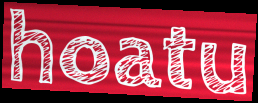
hoatu